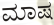
ಮಾಷ